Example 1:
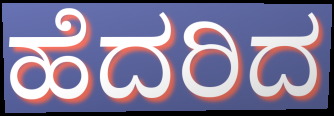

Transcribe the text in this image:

ಹೆದರಿದ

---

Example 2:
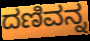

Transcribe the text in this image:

ದಣಿವನ್ನ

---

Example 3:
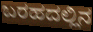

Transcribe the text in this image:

ಬರಹದಲ್ಲಿನ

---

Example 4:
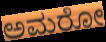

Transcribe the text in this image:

ಅಮರೋ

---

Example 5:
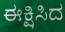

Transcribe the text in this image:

ಈಕ್ಷಿಸಿದ